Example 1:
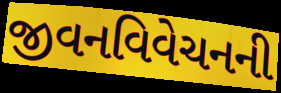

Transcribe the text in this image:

જીવનવિવેચનની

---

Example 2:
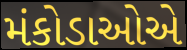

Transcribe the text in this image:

મંકોડાઓએ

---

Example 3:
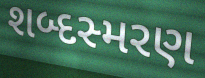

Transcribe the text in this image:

શબ્દસ્મરણ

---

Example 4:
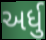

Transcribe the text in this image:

અર્ધુ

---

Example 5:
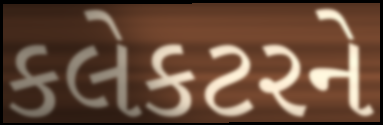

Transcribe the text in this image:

કલેકટરને